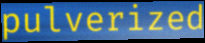
pulverized